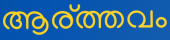
ആര്ത്തവം